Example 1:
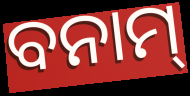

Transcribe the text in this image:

ବନାମ୍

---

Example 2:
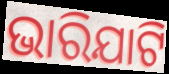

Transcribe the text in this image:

ଭାରିଯାଟି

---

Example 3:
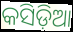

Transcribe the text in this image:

କସିଡ଼ିଆ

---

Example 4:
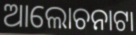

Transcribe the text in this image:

ଆଲୋଚନାଟା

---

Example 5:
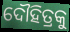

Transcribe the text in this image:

ଦୌହିତ୍ରକୁ